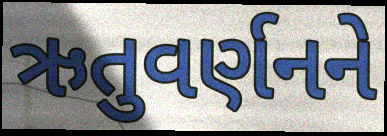
ઋતુવર્ણનને